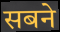
सबने